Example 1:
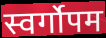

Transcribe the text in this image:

स्वर्गोपम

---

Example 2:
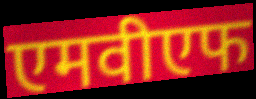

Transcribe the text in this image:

एमवीएफ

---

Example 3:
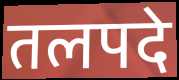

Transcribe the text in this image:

तलपदे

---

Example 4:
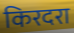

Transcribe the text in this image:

किरदरा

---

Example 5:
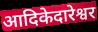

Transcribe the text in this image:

आदिकेदारेश्वर